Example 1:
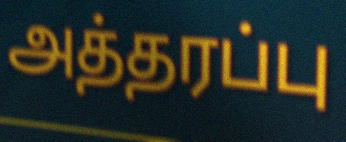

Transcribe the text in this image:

அத்தரப்பு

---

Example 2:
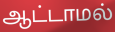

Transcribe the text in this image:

ஆட்டாமல்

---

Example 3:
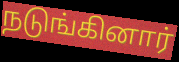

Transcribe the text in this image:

நடுங்கினார்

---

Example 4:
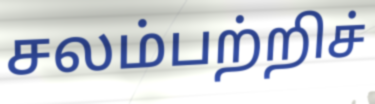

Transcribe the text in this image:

சலம்பற்றிச்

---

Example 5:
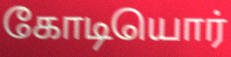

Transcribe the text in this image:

கோடியொர்